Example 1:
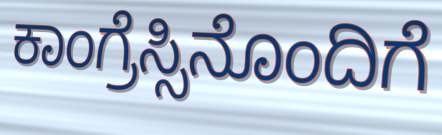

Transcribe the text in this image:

ಕಾಂಗ್ರೆಸ್ಸಿನೊಂದಿಗೆ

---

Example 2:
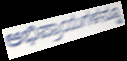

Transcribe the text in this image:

ಅಭಿಪ್ರಾಯಗಳನ್ನೂ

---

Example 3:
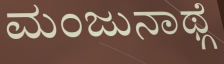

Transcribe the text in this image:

ಮಂಜುನಾಥ್ಗೆ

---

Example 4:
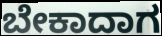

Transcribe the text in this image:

ಬೇಕಾದಾಗ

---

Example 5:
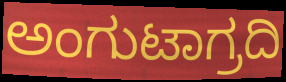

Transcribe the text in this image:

ಅಂಗುಟಾಗ್ರದಿ